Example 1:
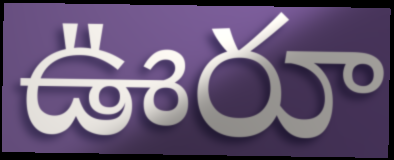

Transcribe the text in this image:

ఊరూ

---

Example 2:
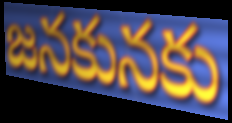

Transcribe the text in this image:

జనకునకు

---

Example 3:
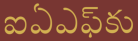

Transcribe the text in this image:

ఐఏఎఫ్‌కు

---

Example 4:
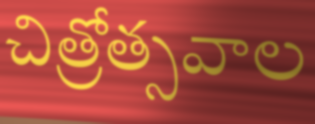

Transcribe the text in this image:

చిత్రోత్సవాల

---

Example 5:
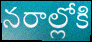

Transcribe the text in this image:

నరాల్లోకి